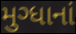
મુગ્ધાનાં